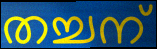
തച്ചന്